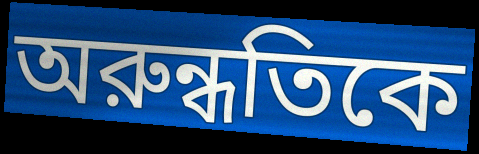
অরুন্ধতিকে